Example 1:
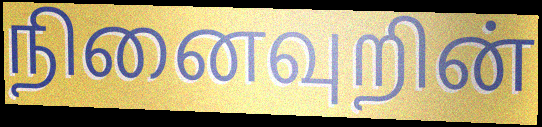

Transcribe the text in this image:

நினைவுறின்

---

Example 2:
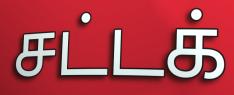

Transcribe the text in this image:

சட்டக்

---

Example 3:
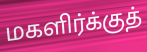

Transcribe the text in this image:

மகளிர்க்குத்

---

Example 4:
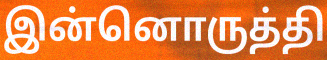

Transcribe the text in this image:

இன்னொருத்தி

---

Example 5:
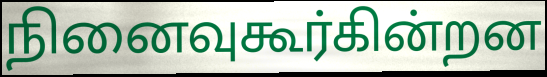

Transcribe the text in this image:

நினைவுகூர்கின்றன